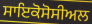
ਸਾਇਕੋਸੋਸੀਅਲ